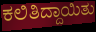
ಕಲಿತಿದ್ದಾಯಿತು